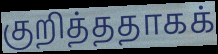
குறித்ததாகக்